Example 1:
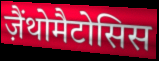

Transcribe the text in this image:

ज़ैंथोमैटोसिस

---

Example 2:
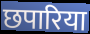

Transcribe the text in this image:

छपारिया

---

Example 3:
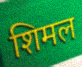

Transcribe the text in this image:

शिमल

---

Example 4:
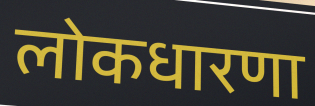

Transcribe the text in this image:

लोकधारणा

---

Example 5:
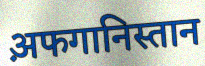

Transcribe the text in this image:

अ़फगानिस्तान